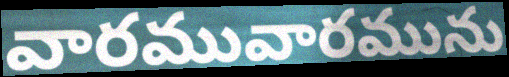
వారమువారమును